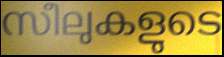
സീലുകളുടെ